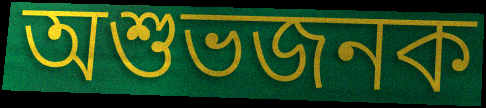
অশুভজনক